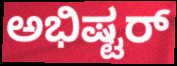
ಅಭಿಷ್ಟರ್